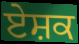
ਏਸ਼ਕ